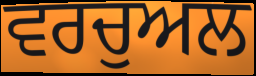
ਵਰਚੁਅਲ